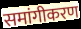
समांगीकरण